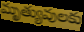
మృత్యువులకు